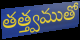
తత్త్వముతో